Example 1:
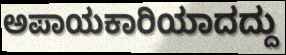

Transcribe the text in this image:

ಅಪಾಯಕಾರಿಯಾದದ್ದು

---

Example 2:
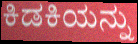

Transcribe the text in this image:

ಕಿಡಕಿಯನ್ನು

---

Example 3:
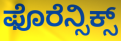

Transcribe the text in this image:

ಫೊರೆನ್ಸಿಕ್ಸ್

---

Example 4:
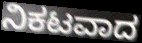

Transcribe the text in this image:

ನಿಕಟವಾದ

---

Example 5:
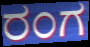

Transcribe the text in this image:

ರಂಗ